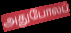
அதுபோலப்